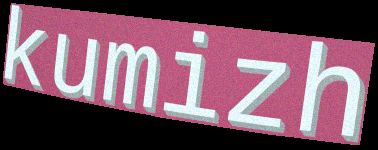
kumizh